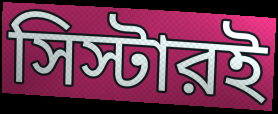
সিস্টারই